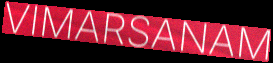
VIMARSANAM